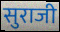
सुराजी